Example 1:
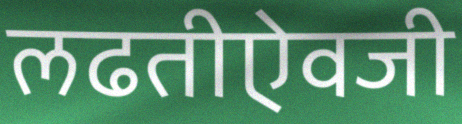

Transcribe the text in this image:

लढतीऐवजी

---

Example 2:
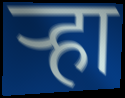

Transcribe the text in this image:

ऱ्हा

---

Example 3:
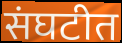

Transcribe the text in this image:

संघटीत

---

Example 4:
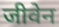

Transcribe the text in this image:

जीवेन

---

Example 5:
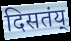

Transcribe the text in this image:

दिसतंय्